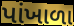
પાંખાળા